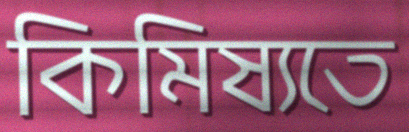
কিমিষ্যতে